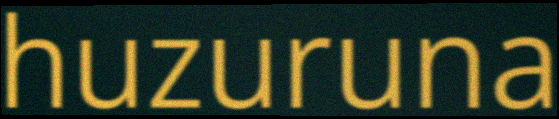
huzuruna